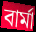
বার্মা